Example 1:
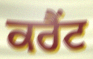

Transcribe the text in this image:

ਕਰੈਂਟ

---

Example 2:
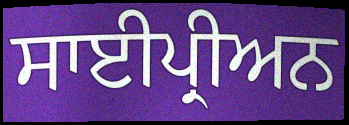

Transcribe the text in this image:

ਸਾਈਪ੍ਰੀਅਨ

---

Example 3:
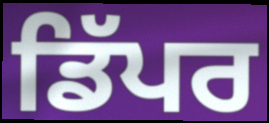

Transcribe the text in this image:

ਡਿੱਪਰ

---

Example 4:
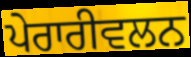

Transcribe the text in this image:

ਪੇਰਾਰੀਵਲਨ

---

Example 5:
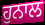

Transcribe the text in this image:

ਹੁਨਾਲ